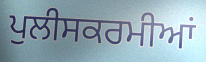
ਪੁਲੀਸਕਰਮੀਆਂ